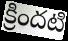
క్రిందటి